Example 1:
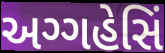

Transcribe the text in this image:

અગ્ગહેસિં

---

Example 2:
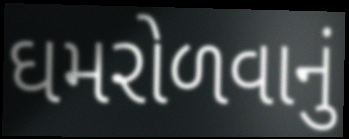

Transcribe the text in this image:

ઘમરોળવાનું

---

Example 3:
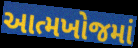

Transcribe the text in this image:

આત્મખોજમાં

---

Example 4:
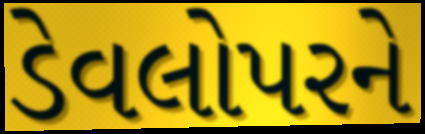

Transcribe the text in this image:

ડેવલોપરને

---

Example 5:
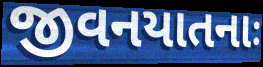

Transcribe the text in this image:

જીવનયાતનાઃ